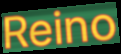
Reino